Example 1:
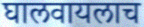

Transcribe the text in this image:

घालवायलाच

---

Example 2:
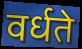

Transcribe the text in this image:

वर्धते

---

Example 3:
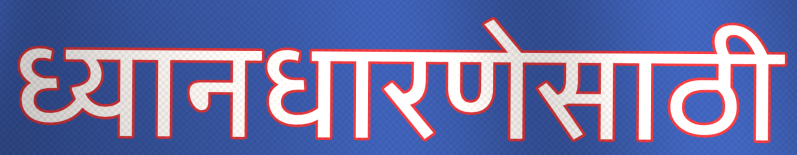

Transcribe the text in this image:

ध्यानधारणेसाठी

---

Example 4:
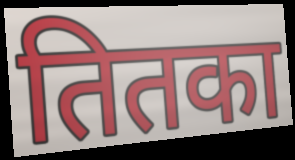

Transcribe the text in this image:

तितका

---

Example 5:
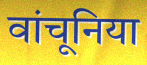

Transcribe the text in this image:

वांचूनिया